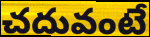
చదువంటే